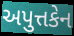
અપુત્તકેન